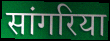
सांगरिया